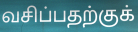
வசிப்பதற்குக்